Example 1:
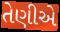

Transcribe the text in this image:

તેણીએ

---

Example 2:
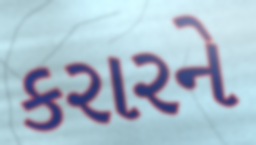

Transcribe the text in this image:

કરારને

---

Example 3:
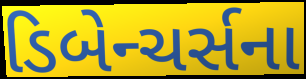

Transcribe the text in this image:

ડિબેન્ચર્સના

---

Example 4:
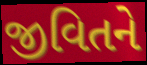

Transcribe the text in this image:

જીવિતને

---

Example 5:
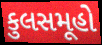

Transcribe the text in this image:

કુલસમૂહો